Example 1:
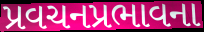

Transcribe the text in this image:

પ્રવચનપ્રભાવના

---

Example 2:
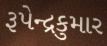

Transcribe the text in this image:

રૂપેન્દ્રકુમાર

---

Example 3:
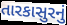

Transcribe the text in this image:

તારકાસુરનું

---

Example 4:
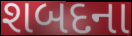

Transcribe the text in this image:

શબદના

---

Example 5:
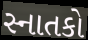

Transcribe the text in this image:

સ્નાતકો